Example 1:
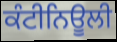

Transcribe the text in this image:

ਕੰਟੀਨਿਊਲੀ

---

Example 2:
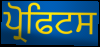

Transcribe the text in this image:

ਪ੍ਰੋਫਿਟਸ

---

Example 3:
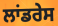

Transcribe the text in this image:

ਲਾਂਡਰੇਸ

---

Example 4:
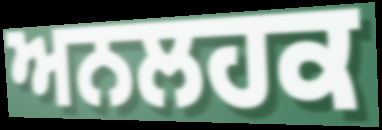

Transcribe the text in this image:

ਅਨਲਹਕ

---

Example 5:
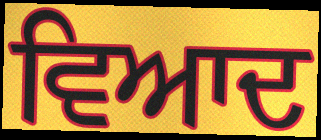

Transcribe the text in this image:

ਵਿਆਦ